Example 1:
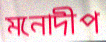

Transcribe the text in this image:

মনোদীপ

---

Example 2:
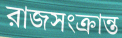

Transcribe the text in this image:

রাজসংক্রান্ত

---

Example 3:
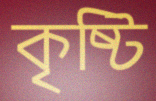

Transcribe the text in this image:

কৃষ্টি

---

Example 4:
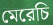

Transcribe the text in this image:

মেরেচি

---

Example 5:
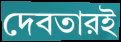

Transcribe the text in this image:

দেবতারই